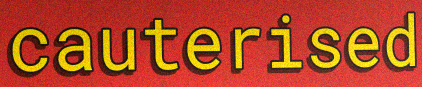
cauterised